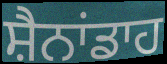
ਸ਼ੈਨਾਂਡਾਹ